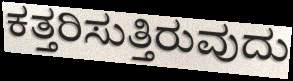
ಕತ್ತರಿಸುತ್ತಿರುವುದು